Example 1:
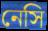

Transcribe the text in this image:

নেসি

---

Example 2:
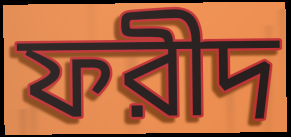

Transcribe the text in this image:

ফরীদ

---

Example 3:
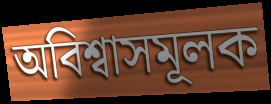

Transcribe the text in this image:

অবিশ্বাসমূলক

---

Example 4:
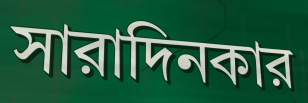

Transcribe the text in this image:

সারাদিনকার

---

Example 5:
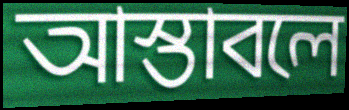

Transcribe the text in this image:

আস্তাবলে